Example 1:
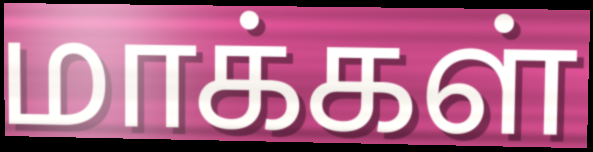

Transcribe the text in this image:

மாக்கள்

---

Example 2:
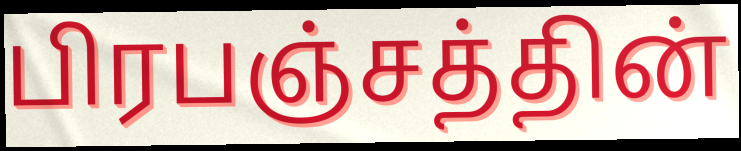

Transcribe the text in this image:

பிரபஞ்சத்தின்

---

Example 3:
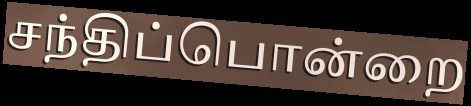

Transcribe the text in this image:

சந்திப்பொன்றை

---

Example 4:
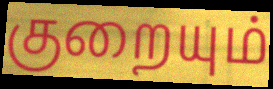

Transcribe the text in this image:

குறையும்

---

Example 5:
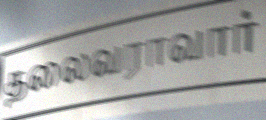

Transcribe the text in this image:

தலைவராவார்